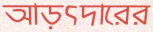
আড়ৎদারের